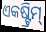
ଏକଷ୍ଟ୍ରିମ୍